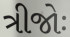
ત્રીજોઃ